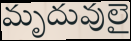
మృదువులై